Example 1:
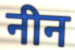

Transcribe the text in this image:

नीन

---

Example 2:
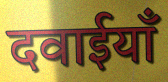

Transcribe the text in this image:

दवाईयाँ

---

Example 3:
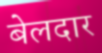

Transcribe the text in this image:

बेलदार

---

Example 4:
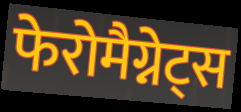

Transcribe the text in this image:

फेरोमैग्नेट्स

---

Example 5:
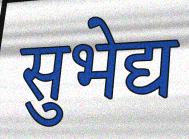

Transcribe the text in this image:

सुभेद्य